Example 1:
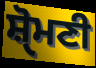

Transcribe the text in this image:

ਸ਼ੑੋਮਣੀ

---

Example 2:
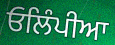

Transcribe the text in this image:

ਓਲਿੰਪੀਆ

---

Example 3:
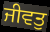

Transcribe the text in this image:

ਜੀਵਤੁ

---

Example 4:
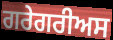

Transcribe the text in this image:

ਗਰੇਗਰੀਅਸ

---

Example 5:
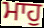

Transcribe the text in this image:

ਮਾਹੁ